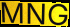
MNG